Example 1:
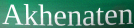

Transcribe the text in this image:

Akhenaten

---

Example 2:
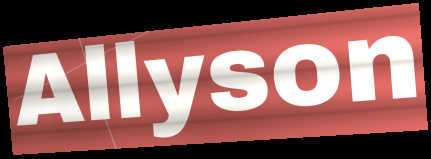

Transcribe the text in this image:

Allyson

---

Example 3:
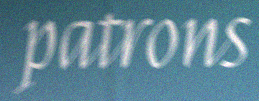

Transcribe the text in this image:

patrons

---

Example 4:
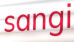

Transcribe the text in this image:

sangi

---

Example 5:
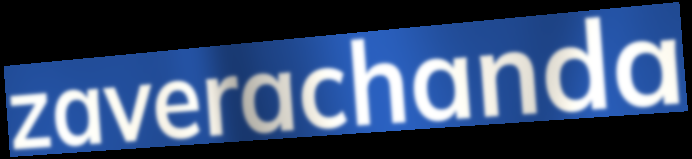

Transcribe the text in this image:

zaverachanda